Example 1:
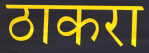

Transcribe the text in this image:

ठाकरा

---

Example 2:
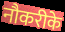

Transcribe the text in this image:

नौकरीके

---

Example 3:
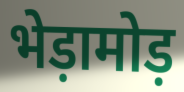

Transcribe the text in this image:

भेड़ामोड़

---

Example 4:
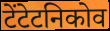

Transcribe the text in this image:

टेंटेटनिकोव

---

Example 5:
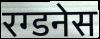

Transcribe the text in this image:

रग्डनेस